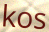
kos